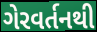
ગેરવર્તનથી